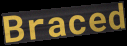
Braced